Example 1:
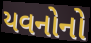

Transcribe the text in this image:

યવનોનો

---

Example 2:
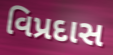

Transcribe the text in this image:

વિપ્રદાસ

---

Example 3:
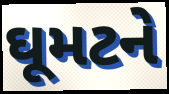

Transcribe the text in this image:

ઘૂમટને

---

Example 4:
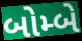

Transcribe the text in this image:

બોમ્બે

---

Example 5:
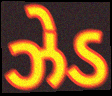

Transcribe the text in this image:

ઝેડ